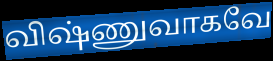
விஷ்ணுவாகவே